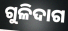
ଗୁଳିଦାଗ